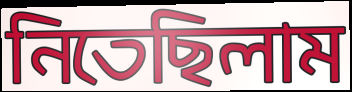
নিতেছিলাম